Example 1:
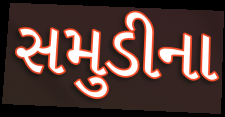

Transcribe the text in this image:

સમુડીના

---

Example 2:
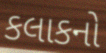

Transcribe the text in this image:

કલાકનો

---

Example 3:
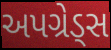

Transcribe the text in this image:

અપગ્રેડ્સ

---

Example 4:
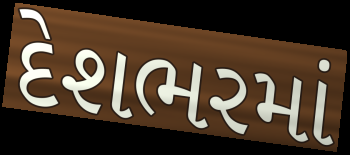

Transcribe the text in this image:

દેશભરમાં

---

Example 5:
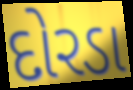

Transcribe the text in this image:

દોરડા